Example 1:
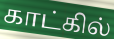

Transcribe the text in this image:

காட்கில்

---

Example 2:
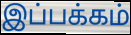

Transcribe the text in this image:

இப்பக்கம்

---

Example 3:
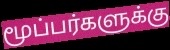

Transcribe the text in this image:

மூப்பர்களுக்கு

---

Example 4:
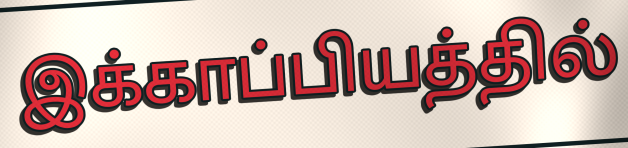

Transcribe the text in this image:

இக்காப்பியத்தில்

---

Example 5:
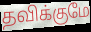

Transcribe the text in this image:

தவிக்குமே